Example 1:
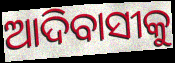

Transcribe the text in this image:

ଆଦିବାସୀକୁ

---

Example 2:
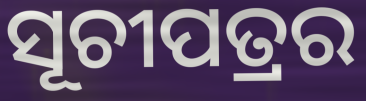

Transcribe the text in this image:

ସୂଚୀପତ୍ରର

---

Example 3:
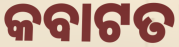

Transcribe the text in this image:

କବାଟତ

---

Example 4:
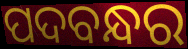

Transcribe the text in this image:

ପଦବନ୍ଧର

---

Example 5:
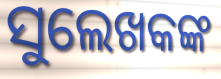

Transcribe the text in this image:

ସୁଲେଖକଙ୍କ